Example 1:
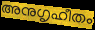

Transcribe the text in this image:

അനുഗൃഹീതം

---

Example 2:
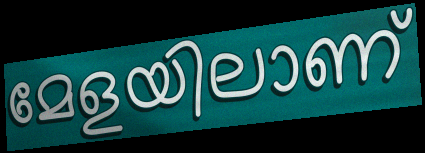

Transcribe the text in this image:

മേളയിലാണ്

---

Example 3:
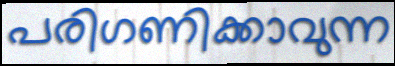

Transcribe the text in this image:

പരിഗണിക്കാവുന്ന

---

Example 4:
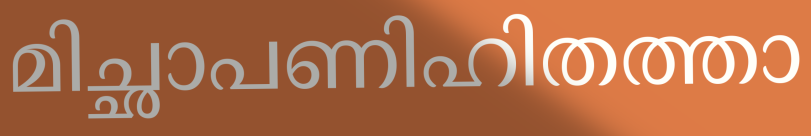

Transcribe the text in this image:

മിച്ഛാപണിഹിതത്താ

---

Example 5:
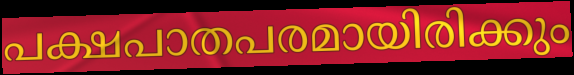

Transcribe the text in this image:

പക്ഷപാതപരമായിരിക്കും